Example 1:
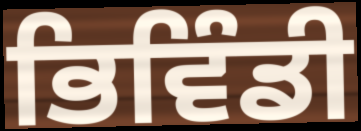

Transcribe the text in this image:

ਭਿਵਿੰਡੀ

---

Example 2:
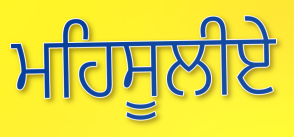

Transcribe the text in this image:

ਮਹਿਸੂਲੀਏ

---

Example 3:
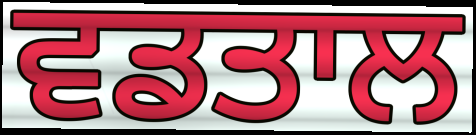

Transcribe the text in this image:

ਵਡਤਾਲ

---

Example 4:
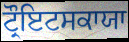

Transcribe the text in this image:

ਟ੍ਰੌਇਟਸਕਾਯਾ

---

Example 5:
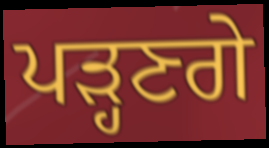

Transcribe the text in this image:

ਪੜ੍ਹਣਗੇ